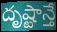
దృష్టాన్తే